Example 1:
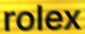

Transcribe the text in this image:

rolex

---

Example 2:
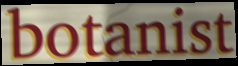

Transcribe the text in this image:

botanist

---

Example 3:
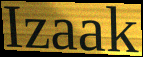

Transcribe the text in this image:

Izaak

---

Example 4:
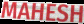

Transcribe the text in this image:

MAHESH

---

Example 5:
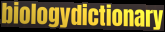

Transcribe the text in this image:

biologydictionary